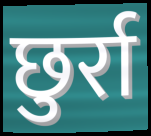
छुर्रा